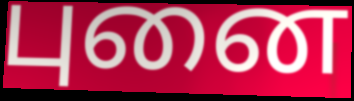
புனை